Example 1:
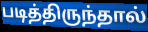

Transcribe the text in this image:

படித்திருந்தால்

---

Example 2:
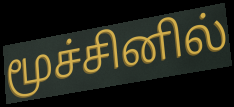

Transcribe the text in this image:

மூச்சினில்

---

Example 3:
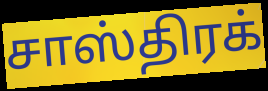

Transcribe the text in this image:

சாஸ்திரக்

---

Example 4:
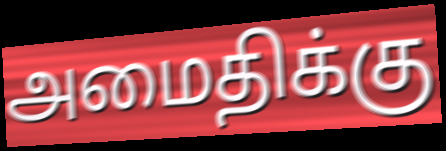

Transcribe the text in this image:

அமைதிக்கு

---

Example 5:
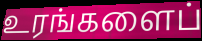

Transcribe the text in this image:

உரங்களைப்